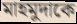
মাহমুদাকে